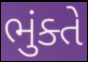
ભુંક્તે